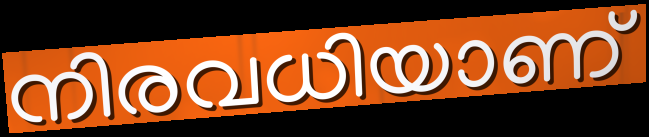
നിരവധിയാണ്